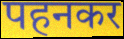
पहनकर